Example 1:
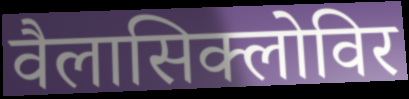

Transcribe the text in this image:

वैलासिक्लोविर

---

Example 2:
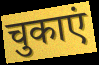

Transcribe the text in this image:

चुकाएं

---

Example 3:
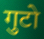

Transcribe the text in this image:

गुटो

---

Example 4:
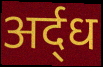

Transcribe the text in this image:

अर्द्ध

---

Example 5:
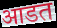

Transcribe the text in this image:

आडत